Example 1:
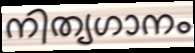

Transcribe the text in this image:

നിത്യഗാനം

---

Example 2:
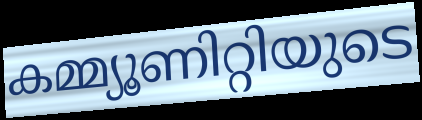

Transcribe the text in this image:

കമ്മ്യൂണിറ്റിയുടെ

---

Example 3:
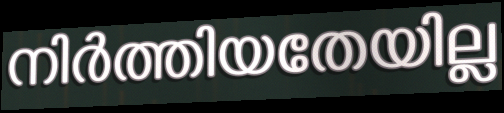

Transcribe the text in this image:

നിർത്തിയതേയില്ല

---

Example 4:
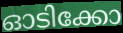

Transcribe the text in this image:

ഓടിക്കോ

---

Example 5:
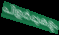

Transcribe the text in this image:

പിളർപ്പുകളും